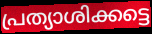
പ്രത്യാശിക്കട്ടെ